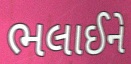
ભલાઈને